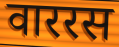
वाररस